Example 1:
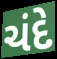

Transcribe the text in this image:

ચંદે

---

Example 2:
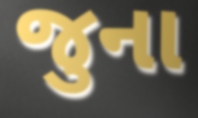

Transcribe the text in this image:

જુના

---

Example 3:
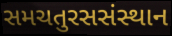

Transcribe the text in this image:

સમચતુરસસંસ્થાન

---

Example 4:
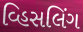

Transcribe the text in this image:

વ્હિસલિંગ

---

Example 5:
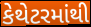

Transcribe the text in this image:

કેથેટરમાંથી